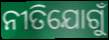
ନୀତିଯୋଗୁଁ